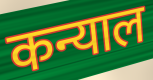
कन्याल